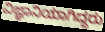
ವಿಜ್ಞಾನಿಯಾಗಿದ್ದರು